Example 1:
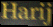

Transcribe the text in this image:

Harij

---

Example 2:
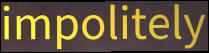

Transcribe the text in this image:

impolitely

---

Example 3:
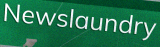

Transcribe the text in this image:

Newslaundry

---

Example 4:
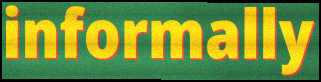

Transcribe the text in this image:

informally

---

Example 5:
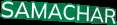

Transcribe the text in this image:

SAMACHAR